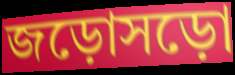
জড়োসড়ো